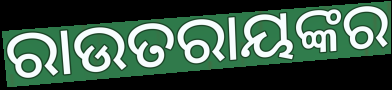
ରାଉତରାୟଙ୍କର